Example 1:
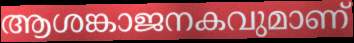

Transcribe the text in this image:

ആശങ്കാജനകവുമാണ്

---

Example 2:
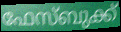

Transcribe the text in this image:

ഫേസ്ബുക്ക്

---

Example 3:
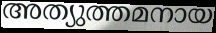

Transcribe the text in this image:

അത്യുത്തമനായ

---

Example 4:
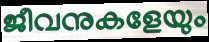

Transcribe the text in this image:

ജീവനുകളേയും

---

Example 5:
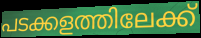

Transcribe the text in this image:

പടക്കളത്തിലേക്ക്